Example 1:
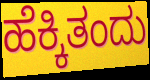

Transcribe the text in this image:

ಹೆಕ್ಕಿತಂದು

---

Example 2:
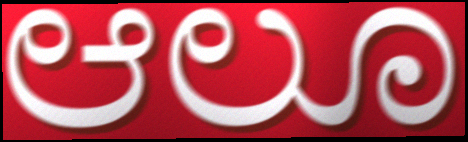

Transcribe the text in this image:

ಆಲೂ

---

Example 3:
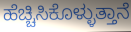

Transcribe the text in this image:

ಹೆಚ್ಚಿಸಿಕೊಳ್ಳುತ್ತಾನೆ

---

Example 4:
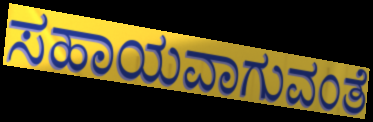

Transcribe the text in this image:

ಸಹಾಯವಾಗುವಂತೆ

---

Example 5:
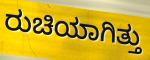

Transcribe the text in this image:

ರುಚಿಯಾಗಿತ್ತು